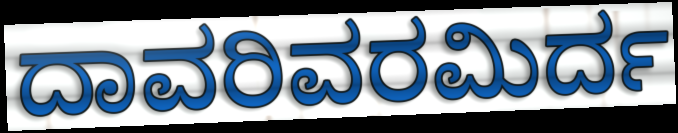
ದಾವರಿವರಮಿರ್ದ